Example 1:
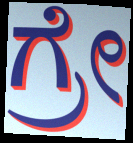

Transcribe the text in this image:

ಗ್ರೇ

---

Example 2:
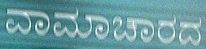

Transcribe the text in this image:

ವಾಮಾಚಾರದ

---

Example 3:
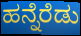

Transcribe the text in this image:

ಹನ್ನೆರೆಡು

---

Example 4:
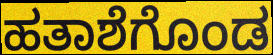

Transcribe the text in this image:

ಹತಾಶೆಗೊಂಡ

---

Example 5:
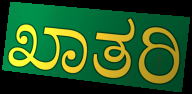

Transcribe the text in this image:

ಖಾತರಿ